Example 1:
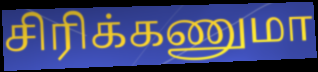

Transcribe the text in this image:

சிரிக்கணுமா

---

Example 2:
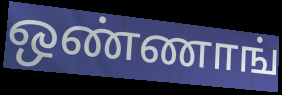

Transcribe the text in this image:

ஒண்ணாங்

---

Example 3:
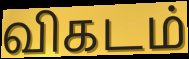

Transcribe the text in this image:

விகடம்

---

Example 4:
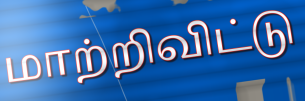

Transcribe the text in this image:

மாற்றிவிட்டு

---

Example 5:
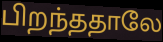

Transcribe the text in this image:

பிறந்ததாலே